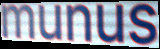
munus